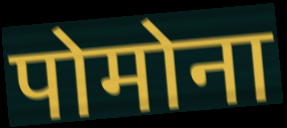
पोमोना